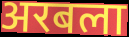
अरबला